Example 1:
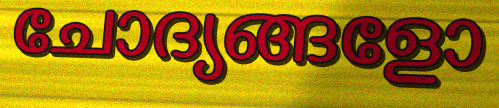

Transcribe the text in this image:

ചോദ്യങ്ങളോ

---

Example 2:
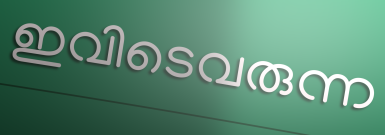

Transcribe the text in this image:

ഇവിടെവരുന്ന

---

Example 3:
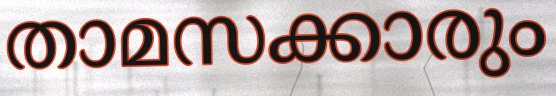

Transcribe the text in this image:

താമസക്കാരും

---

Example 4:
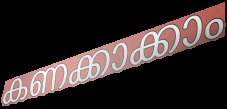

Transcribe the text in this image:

കണക്കാക്കാം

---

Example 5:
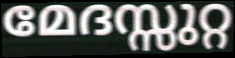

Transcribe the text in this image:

മേദസ്സുറ്റ